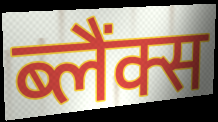
ब्लैंक्स